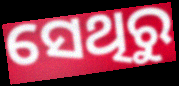
ସେଥିରୁ